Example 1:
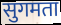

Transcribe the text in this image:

सुगमता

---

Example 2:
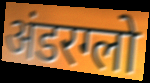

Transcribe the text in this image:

अंडरग्लो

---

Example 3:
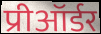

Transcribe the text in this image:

प्रीऑर्डर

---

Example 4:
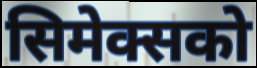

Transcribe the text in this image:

सिमेक्सको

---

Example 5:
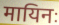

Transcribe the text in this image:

मायिनः